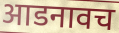
आडनावच